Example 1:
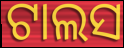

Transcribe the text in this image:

ଟାଲସ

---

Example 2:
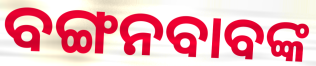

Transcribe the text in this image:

ବଙ୍ଗନବାବଙ୍କ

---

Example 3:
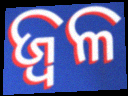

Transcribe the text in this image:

ଜ୍ୱଳ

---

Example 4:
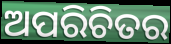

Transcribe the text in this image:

ଅପରିଚିତର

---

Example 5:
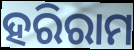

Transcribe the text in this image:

ହରିରାମ